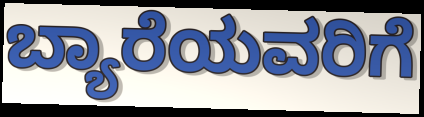
ಬ್ಯಾರೆಯವರಿಗೆ